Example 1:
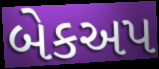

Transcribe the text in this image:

બેકઅપ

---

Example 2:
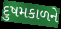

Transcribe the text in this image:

દુષમકાળને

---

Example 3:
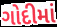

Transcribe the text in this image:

ગોદીમાં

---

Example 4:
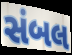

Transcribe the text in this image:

સંબલ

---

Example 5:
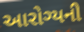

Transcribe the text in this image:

આરોગ્યની